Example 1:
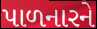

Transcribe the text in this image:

પાળનારને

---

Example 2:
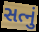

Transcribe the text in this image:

સત્નું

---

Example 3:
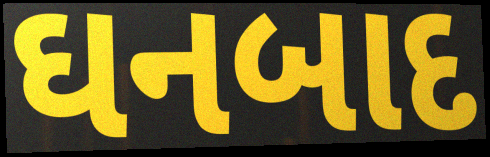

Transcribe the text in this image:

ઘનબાદ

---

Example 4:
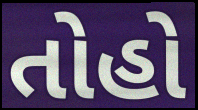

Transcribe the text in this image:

તોહો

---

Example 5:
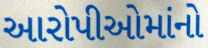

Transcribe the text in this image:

આરોપીઓમાંનો